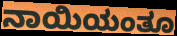
ನಾಯಿಯಂತೂ